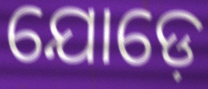
ଯୋଡ଼େ